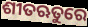
ଶୀତଋତୁରେ